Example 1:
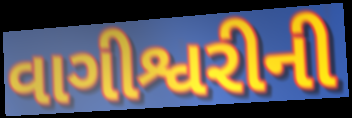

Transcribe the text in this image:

વાગીશ્વરીની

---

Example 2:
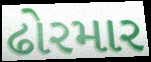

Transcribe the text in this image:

ઢોરમાર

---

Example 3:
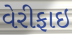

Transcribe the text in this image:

વેરીફાઇ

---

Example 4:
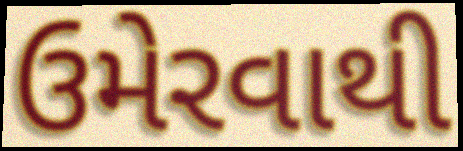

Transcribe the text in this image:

ઉમેરવાથી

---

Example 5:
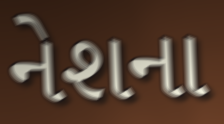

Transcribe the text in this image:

નેશના